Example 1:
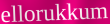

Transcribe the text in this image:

ellorukkum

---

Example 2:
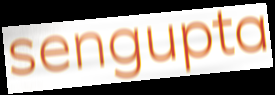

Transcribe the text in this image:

sengupta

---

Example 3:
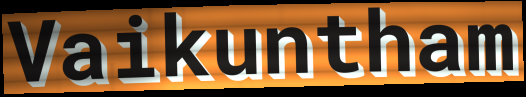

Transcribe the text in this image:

Vaikuntham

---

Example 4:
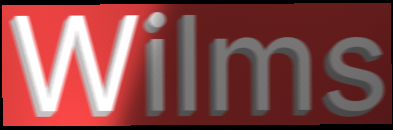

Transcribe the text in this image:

Wilms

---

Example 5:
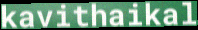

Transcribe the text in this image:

kavithaikal